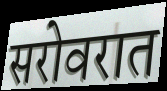
सरोवरात